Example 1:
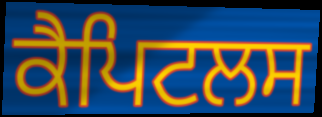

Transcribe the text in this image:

ਕੈਪਿਟਲਸ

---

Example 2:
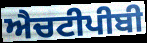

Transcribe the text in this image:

ਐਚਟੀਪੀਬੀ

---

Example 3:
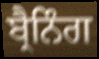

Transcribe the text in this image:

ਬ੍ਰੈਨਿੰਗ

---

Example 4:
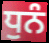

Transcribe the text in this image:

ਧੁਨੰ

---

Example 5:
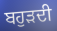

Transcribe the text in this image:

ਬਹੁੜਦੀ